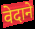
वेदाने